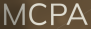
MCPA